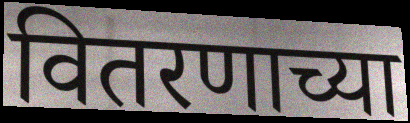
वितरणाच्या